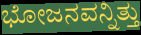
ಭೋಜನವನ್ನಿತ್ತು